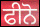
ਫੀਨੋ